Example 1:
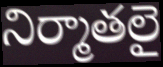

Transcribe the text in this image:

నిర్మాతలై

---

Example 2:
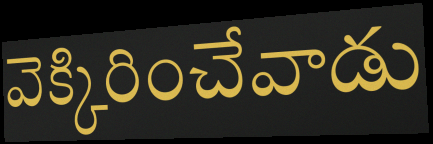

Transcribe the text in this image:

వెక్కిరించేవాడు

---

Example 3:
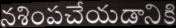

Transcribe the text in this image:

నశింపచేయడానికి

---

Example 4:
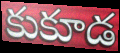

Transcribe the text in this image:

కుకూడ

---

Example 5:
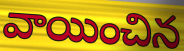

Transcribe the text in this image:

వాయించిన